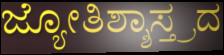
ಜ್ಯೋತಿಶ್ಶಾಸ್ತ್ರದ